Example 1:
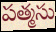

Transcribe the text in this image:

పత్మసు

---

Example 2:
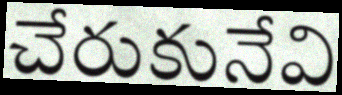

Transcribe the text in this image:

చేరుకునేవి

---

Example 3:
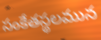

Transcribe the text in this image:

సంకేతస్థలమున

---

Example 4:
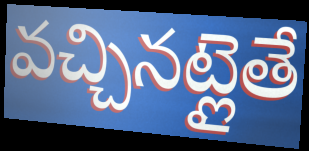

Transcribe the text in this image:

వచ్చినట్లైతే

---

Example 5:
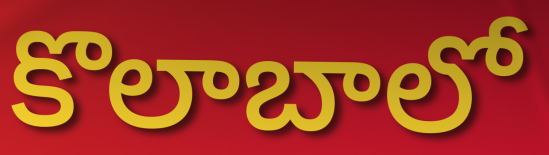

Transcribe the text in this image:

కొలాబాలో